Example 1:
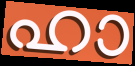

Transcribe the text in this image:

ഹാ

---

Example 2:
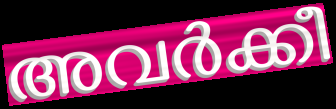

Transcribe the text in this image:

അവർക്കീ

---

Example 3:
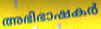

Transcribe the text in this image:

അഭിഭാഷകർ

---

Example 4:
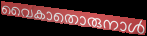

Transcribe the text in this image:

വൈകാതൊരുനാൾ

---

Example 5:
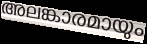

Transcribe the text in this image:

അലങ്കാരമായും